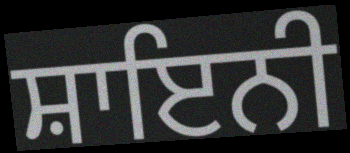
ਸ਼ਾਇਨੀ